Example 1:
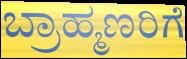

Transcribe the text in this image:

ಬ್ರಾಹ್ಮಣರಿಗೆ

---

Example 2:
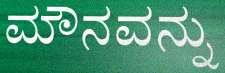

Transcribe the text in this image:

ಮೌನವನ್ನು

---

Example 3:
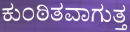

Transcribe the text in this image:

ಕುಂಠಿತವಾಗುತ್ತ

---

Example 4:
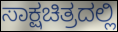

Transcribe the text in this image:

ಸಾಕ್ಷಚಿತ್ರದಲ್ಲಿ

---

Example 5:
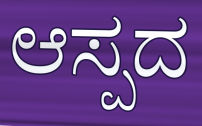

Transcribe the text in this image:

ಆಸ್ಪದ